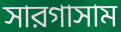
সারগাসাম